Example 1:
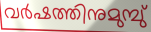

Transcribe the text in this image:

വർഷത്തിനുമുമ്പു്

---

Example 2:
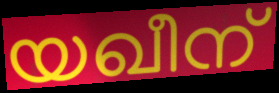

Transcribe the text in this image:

യഖീന്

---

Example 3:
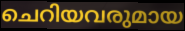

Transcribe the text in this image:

ചെറിയവരുമായ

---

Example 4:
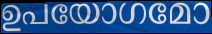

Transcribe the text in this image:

ഉപയോഗമോ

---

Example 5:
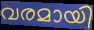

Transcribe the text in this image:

വരമായി